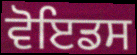
ਵੋਇਡਸ